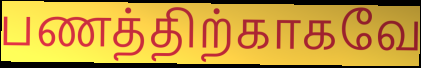
பணத்திற்காகவே